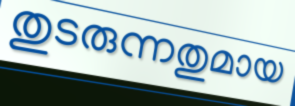
തുടരുന്നതുമായ